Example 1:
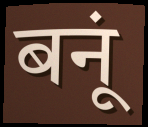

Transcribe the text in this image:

बनूं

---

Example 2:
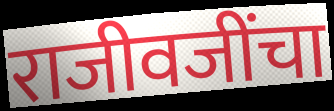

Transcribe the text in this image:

राजीवजींचा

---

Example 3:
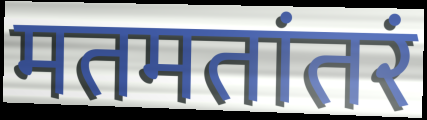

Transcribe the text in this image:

मतमतांतरं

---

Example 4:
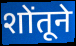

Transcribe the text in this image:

शोंतूने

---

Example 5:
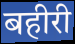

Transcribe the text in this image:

बहीरी